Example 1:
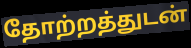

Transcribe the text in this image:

தோற்றத்துடன்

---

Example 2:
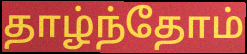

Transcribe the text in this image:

தாழ்ந்தோம்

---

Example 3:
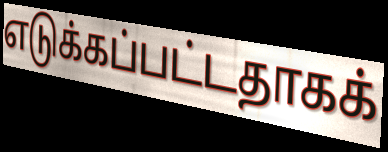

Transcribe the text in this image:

எடுக்கப்பட்டதாகக்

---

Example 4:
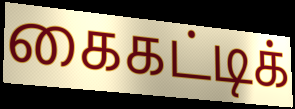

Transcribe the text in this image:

கைகட்டிக்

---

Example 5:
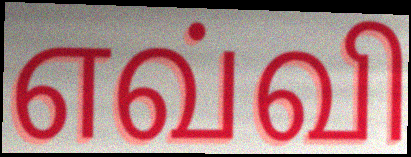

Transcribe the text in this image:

எவ்வி